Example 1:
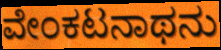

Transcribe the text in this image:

ವೇಂಕಟನಾಥನು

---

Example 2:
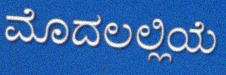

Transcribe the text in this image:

ಮೊದಲಲ್ಲಿಯೆ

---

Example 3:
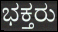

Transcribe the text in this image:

ಭಕ್ತರು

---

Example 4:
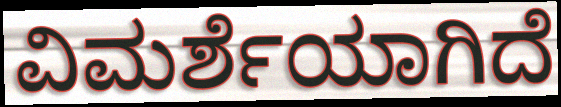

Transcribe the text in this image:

ವಿಮರ್ಶೆಯಾಗಿದೆ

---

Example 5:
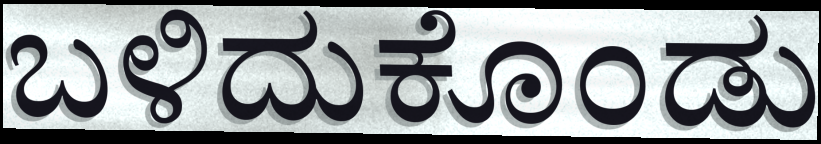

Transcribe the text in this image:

ಬಳಿದುಕೊಂಡು